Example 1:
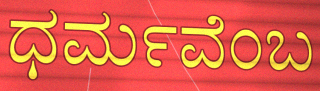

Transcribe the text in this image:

ಧರ್ಮವೆಂಬ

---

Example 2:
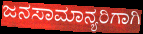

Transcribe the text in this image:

ಜನಸಾಮಾನ್ಯರಿಗಾಗಿ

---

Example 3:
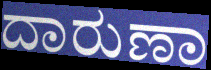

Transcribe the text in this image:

ದಾರುಣಾ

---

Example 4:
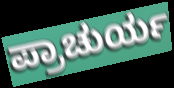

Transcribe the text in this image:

ಪ್ರಾಚುರ್ಯ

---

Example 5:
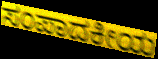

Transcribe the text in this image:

ಸಂಪಾದಕೀಯ